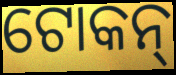
ଟୋକନ୍